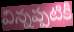
విన్నప్పటికీ